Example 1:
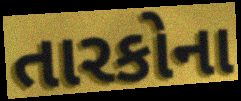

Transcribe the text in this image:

તારકોના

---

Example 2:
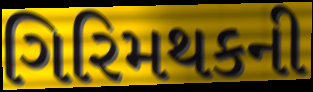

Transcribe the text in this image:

ગિરિમથકની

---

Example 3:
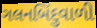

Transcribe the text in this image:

ગલનબિંદુવાળી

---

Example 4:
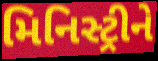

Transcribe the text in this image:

મિનિસ્ટ્રીને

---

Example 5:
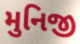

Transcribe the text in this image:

મુનિજી